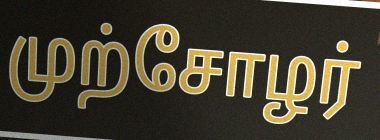
முற்சோழர்